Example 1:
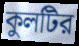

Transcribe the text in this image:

কুলটির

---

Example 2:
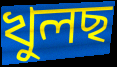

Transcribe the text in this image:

খুলছ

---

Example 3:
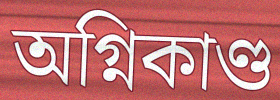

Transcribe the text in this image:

অগ্নিকাণ্ড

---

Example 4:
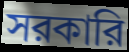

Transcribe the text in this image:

সরকারি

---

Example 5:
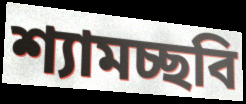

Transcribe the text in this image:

শ্যামচ্ছবি